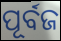
ପୂର୍ବଜ